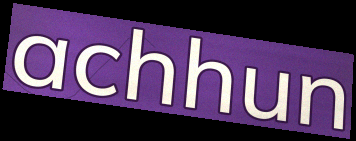
achhun